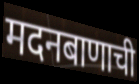
मदनबाणाची